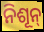
ନିଶୂନ୍